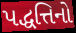
પદ્ધત્તિનો